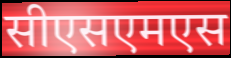
सीएसएमएस